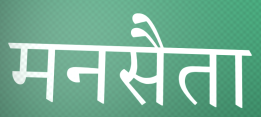
मनसैता